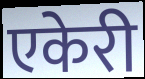
एकेरी